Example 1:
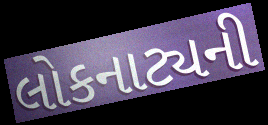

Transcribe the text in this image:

લોકનાટ્યની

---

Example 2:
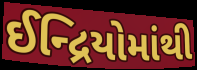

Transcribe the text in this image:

ઈન્દ્રિયોમાંથી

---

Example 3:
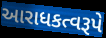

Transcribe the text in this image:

આરાધકત્વરૂપે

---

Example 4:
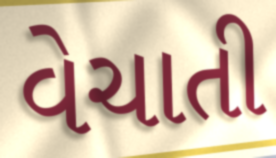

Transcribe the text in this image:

વેચાતી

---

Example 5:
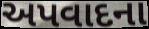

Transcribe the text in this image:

અપવાદના